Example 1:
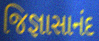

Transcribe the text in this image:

જિજ્ઞાસાનંદ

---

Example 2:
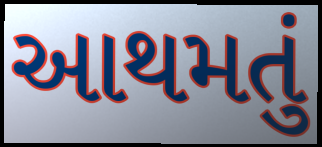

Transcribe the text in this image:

આથમતું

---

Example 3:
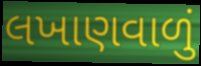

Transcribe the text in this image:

લખાણવાળું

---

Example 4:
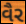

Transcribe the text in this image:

વૈર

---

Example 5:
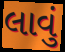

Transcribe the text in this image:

લાવું